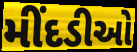
મીંદડીઓ